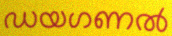
ഡയഗണൽ